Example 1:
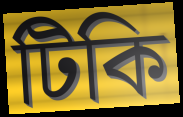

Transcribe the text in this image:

টিকি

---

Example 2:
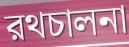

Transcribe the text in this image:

রথচালনা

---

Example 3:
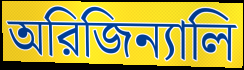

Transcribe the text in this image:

অরিজিন্যালি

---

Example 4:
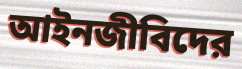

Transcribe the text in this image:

আইনজীবিদের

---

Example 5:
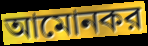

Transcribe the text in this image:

আমোনকর